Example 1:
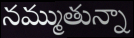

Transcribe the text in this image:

నమ్ముతున్నా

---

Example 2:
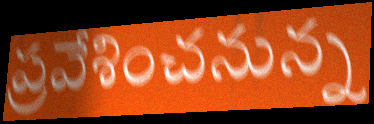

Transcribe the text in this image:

ప్రవేశించనున్న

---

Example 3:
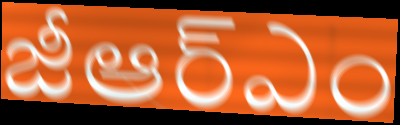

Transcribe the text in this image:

జీఆర్ఎం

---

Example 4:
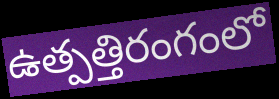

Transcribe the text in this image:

ఉత్పత్తిరంగంలో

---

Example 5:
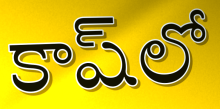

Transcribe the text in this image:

కాష్‌లో